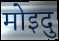
मोइदु